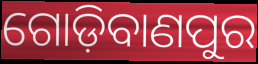
ଗୋଡ଼ିବାଣପୁର